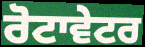
ਰੋਟਾਵੇਟਰ